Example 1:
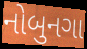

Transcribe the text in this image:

નોબુનગા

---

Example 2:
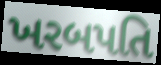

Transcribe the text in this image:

ખરબપતિ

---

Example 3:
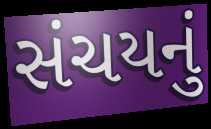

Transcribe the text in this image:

સંચયનું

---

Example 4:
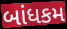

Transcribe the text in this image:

બાંધકમ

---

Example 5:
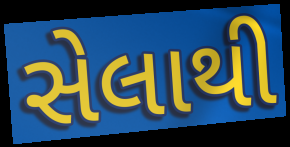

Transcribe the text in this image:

સેલાથી